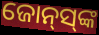
ଜୋନ୍‌ସ୍‌ଙ୍କ